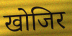
खोजिर